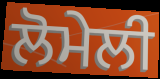
ਲੋਮੇਲੀ